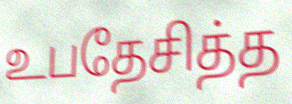
உபதேசித்த